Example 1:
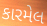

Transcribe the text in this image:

કારમેલ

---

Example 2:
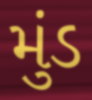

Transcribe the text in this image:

મુંડ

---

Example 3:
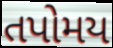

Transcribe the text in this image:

તપોમય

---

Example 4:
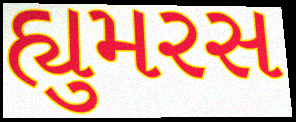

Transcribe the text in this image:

હ્યુમરસ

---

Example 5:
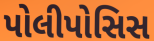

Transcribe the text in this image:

પોલીપોસિસ